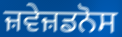
ਜ਼ਵੇਜ਼ਡਨੋਸ